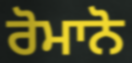
ਰੋਮਾਨੋ